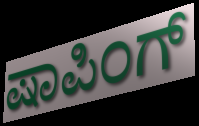
ಷಾಪಿಂಗ್